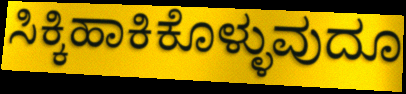
ಸಿಕ್ಕಿಹಾಕಿಕೊಳ್ಳುವುದೂ